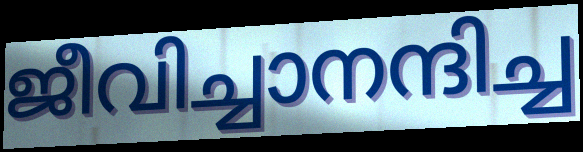
ജീവിച്ചാനന്ദിച്ച